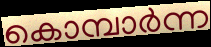
കൊമ്പാർന്ന